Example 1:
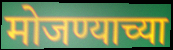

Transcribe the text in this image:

मोजण्याच्या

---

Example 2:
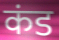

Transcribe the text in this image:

कंड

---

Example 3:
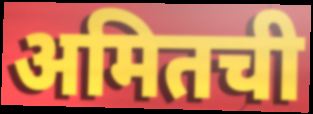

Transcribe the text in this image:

अमितची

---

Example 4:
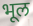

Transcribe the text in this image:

भूल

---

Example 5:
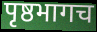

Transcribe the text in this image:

पृष्ठभागच